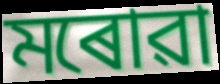
মৰোৱা